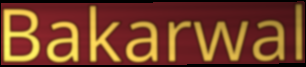
Bakarwal